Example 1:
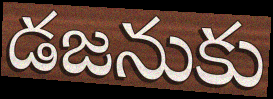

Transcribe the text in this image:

డజనుకు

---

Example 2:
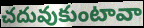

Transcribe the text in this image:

చదువుకుంటావా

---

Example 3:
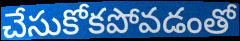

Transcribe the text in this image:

చేసుకోకపోవడంతో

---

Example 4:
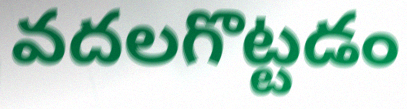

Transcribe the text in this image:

వదలగొట్టడం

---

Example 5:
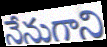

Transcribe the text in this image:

నేనుగాని